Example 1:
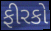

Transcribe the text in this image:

ફીરકો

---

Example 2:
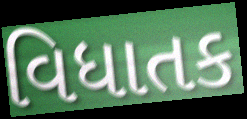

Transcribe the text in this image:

વિધાતક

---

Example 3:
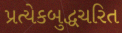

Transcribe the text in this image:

પ્રત્યેકબુદ્ધચરિત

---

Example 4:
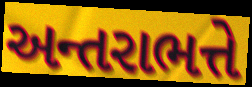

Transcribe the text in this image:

અન્તરાભત્તે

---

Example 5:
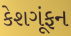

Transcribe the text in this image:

કેશગૂંફન